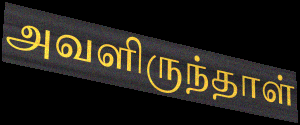
அவளிருந்தாள்